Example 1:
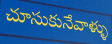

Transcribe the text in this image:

చూసుకునేవాళ్ళు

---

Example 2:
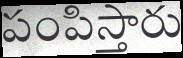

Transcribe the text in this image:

పంపిస్తారు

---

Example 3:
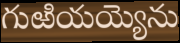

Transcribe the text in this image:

గుఱియయ్యెను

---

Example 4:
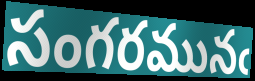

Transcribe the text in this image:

సంగరమునఁ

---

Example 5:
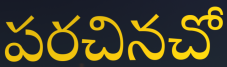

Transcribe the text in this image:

పరచినచో